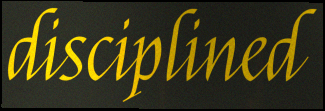
disciplined